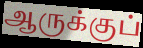
ஆருக்குப்